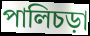
পালিচড়া